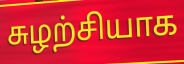
சுழற்சியாக